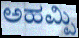
ಅಹಮ್ಪಿ